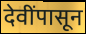
देवींपासून